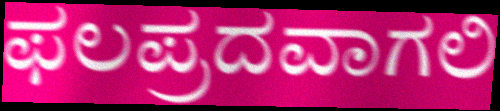
ಫಲಪ್ರದವಾಗಲಿ